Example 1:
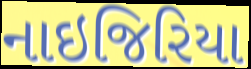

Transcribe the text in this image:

નાઇજિરિયા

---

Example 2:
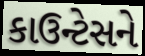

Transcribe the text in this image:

કાઉન્ટેસને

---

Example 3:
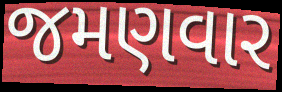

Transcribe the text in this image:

જમણવાર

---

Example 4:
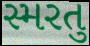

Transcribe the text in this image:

સ્મરતુ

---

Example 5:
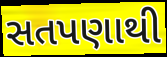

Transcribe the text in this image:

સતપણાથી